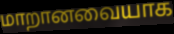
மாறானவையாக